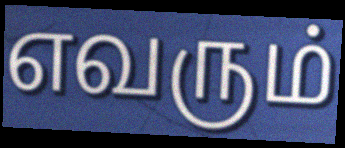
எவரும்